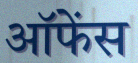
ऑफेंस